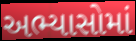
અભ્યાસોમાં